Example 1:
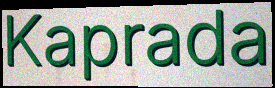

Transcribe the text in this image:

Kaprada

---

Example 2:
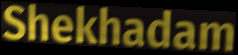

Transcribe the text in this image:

Shekhadam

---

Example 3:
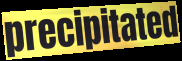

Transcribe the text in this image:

precipitated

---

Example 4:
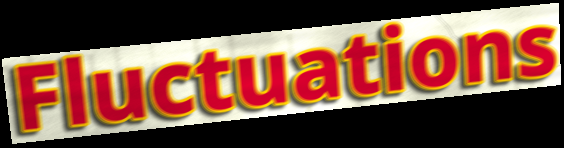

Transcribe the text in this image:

Fluctuations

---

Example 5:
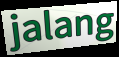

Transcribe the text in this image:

jalang